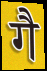
गै